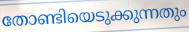
തോണ്ടിയെടുക്കുന്നതും